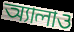
অ্যালাও